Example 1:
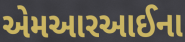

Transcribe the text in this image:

એમઆરઆઈના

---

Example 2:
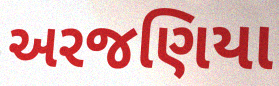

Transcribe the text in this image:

અરજણિયા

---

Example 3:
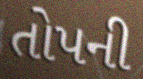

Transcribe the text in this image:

તોપની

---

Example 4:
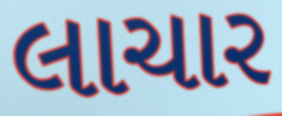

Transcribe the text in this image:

લાચાર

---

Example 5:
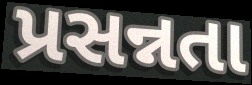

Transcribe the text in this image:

પ્રસન્નતા